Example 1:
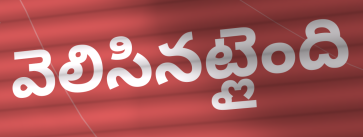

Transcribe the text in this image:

వెలిసినట్లైంది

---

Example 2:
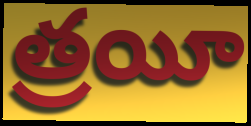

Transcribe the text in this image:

త్రయీ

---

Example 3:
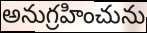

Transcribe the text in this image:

అనుగ్రహించును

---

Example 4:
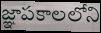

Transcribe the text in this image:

జ్ఞాపకాలలోని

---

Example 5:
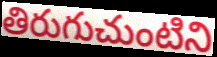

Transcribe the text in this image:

తిరుగుచుంటిని